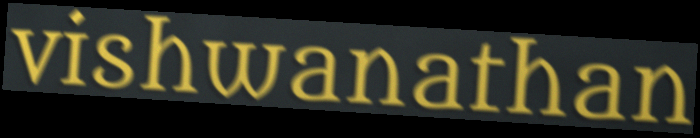
vishwanathan